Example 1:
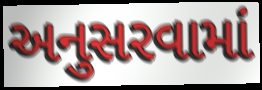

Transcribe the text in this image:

અનુસરવામાં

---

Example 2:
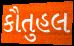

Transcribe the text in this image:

કૌતુહલ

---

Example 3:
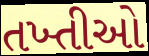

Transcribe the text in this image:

તખ્તીઓ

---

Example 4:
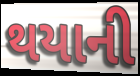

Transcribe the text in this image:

થયાની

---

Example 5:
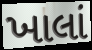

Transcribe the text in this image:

ખાલાં